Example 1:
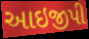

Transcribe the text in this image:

આઇજીપી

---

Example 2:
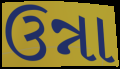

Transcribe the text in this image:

ઉન્ના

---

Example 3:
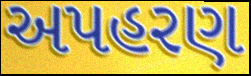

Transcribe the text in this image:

અપહરણ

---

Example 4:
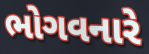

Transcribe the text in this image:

ભોગવનારે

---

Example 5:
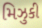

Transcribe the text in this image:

મિઝુકી